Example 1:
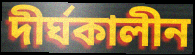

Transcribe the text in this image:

দীৰ্ঘকালীন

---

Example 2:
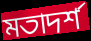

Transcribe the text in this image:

মতাদৰ্শ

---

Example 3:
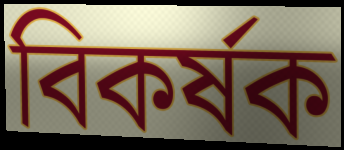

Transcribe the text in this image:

বিকৰ্ষক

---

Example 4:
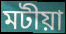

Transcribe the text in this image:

মটীয়া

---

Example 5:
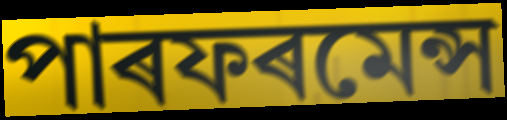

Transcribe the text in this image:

পাৰফৰমেন্স